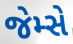
જેમ્સે